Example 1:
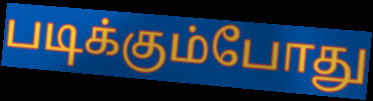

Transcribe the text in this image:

படிக்கும்போது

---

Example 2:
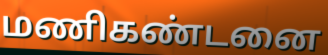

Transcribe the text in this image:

மணிகண்டனை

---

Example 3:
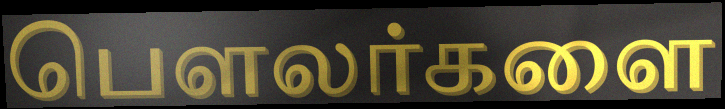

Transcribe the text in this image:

பௌலர்களை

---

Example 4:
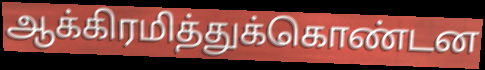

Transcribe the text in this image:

ஆக்கிரமித்துக்கொண்டன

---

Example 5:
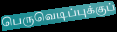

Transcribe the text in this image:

பெருவெடிப்புக்குப்